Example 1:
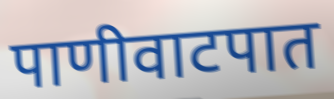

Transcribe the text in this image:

पाणीवाटपात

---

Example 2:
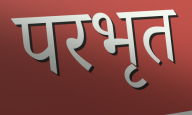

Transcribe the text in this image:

परभृत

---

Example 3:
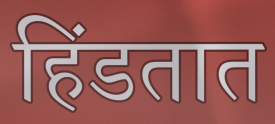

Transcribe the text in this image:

हिंडतात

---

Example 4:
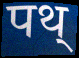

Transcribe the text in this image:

पथ्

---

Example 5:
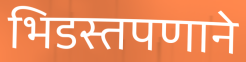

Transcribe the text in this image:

भिडस्तपणाने